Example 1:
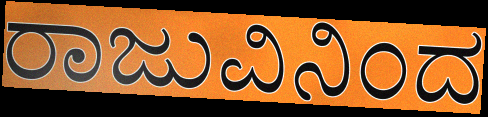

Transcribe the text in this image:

ರಾಜುವಿನಿಂದ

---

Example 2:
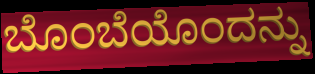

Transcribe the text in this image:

ಬೊಂಬೆಯೊಂದನ್ನು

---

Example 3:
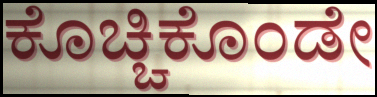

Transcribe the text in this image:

ಕೊಚ್ಚಿಕೊಂಡೇ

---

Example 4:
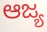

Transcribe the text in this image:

ಆಜ್ಯ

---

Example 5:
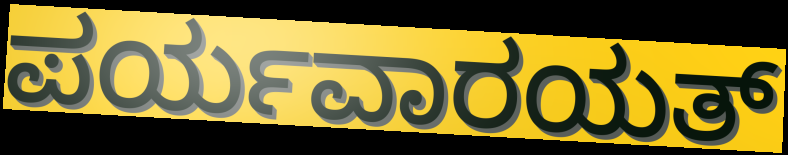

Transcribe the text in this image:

ಪರ್ಯವಾರಯತ್